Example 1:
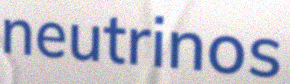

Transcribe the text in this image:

neutrinos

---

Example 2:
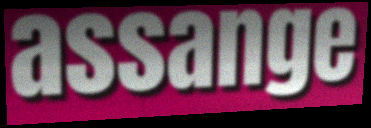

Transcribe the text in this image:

assange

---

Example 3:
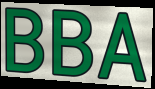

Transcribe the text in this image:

BBA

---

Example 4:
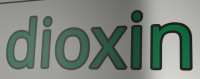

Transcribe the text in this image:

dioxin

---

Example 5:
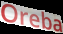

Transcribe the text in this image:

Oreba